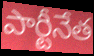
పార్టీనేత